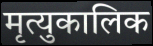
मृत्युकालिक